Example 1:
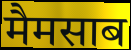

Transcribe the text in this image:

मैमसाब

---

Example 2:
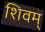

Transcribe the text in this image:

शिवम्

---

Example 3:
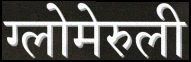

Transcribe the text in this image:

ग्लोमेरुली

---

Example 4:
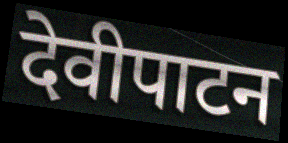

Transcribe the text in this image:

देवीपाटन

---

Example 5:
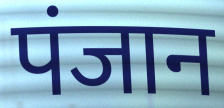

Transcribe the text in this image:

पंजान